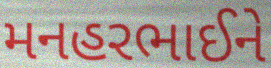
મનહરભાઈને